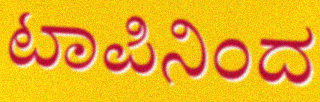
ಟಾಪಿನಿಂದ